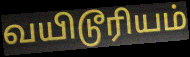
வயிடூரியம்